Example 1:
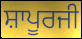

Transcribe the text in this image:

ਸ਼ਾਪੂਰਜੀ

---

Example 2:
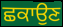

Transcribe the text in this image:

ਛਕਾਉਣ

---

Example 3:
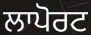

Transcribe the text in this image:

ਲਾਪੋਰਟ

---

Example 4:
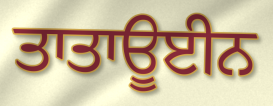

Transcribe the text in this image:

ਤਾਤਾਊਈਨ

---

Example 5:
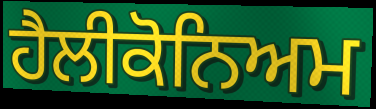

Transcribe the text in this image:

ਹੈਲੀਕੋਨਿਅਮ